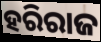
ହରିରାଜ